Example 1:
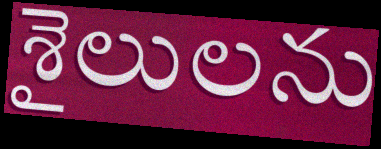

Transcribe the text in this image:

శైలులను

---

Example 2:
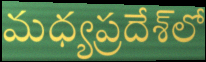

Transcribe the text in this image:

మధ్యప్రదేశ్‌లో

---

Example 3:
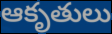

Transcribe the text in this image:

ఆకృతులు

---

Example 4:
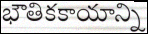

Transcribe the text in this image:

భౌతికకాయాన్ని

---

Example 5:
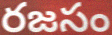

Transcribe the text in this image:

రజసం